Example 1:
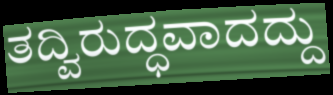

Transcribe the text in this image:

ತದ್ವಿರುದ್ಧವಾದದ್ದು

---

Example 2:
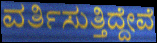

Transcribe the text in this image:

ವರ್ತಿಸುತ್ತಿದ್ದೇವೆ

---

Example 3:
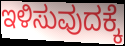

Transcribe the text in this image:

ಇಳಿಸುವುದಕ್ಕೆ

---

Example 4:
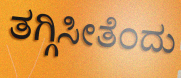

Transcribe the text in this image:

ತಗ್ಗಿಸೀತೆಂದು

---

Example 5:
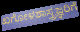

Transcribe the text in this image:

ಖಗೋಳಶಾಸ್ತ್ರಜ್ಞರಿಗೆ